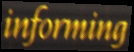
informing